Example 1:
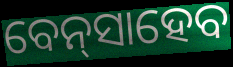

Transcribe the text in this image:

ବେନ୍‌ସାହେବ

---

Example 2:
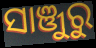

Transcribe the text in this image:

ସାଞ୍ଜୁରୁ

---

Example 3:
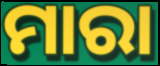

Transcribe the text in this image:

ମାରା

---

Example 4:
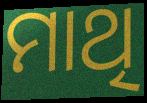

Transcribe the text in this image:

ମାଥି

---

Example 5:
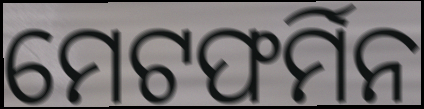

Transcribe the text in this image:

ମେଟଫର୍ମିନ